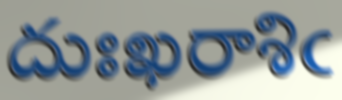
దుఃఖరాశిఁ